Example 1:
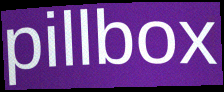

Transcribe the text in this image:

pillbox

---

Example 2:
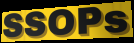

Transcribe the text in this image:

SSOPs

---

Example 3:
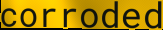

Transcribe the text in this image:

corroded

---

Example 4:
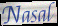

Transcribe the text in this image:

Nasal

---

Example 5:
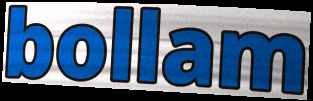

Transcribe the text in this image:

bollam